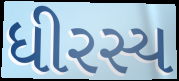
ધીરસ્ય